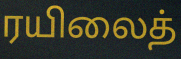
ரயிலைத்